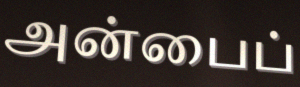
அன்பைப்